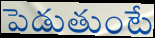
పెడుతుంటే